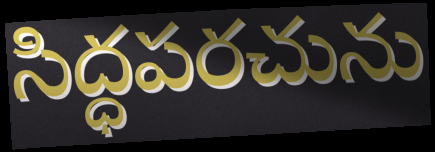
సిద్ధపరచును